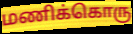
மணிக்கொரு